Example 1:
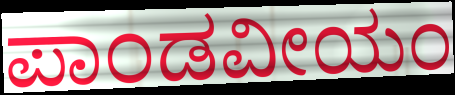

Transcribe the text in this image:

ಪಾಂಡವೀಯಂ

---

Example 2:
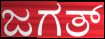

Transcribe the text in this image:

ಜಗತ್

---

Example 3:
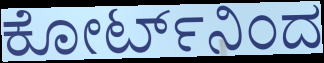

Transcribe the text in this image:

ಕೋರ್ಟ್‌ನಿಂದ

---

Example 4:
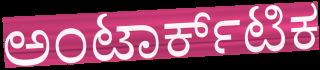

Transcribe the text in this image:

ಅಂಟಾರ್ಕ್‍ಟಿಕ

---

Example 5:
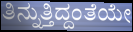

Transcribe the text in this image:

ತಿನ್ನುತ್ತಿದ್ದಂತೆಯೇ